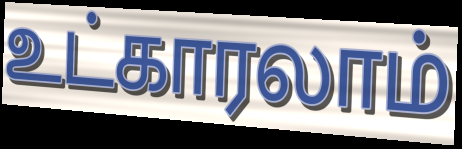
உட்காரலாம்